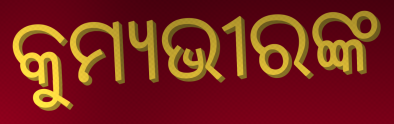
କୁମ୍ୟଭୀରଙ୍କ